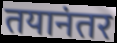
तयानंतर